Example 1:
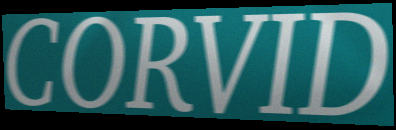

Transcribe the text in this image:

CORVID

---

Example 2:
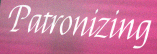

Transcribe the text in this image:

Patronizing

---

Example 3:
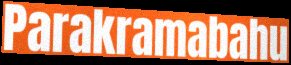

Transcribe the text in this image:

Parakramabahu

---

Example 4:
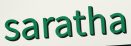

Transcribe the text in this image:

saratha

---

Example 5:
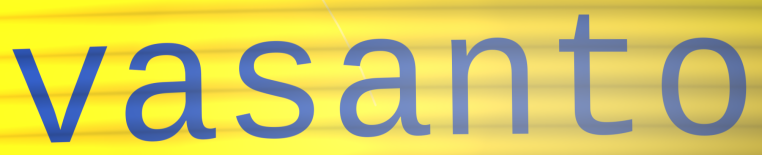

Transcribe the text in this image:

vasanto